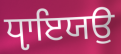
ਧੵਾਇਯਉ